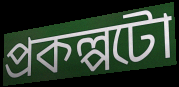
প্ৰকল্পটো